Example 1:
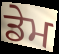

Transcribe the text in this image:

ਡੇਮ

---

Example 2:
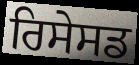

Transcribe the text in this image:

ਰਿਸੇਸਡ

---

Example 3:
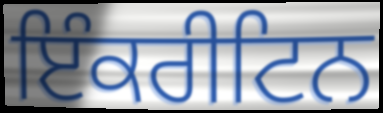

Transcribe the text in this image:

ਇੰਕਰੀਟਿਨ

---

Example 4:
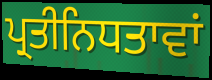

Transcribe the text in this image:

ਪ੍ਰਤੀਨਿਧਤਾਵਾਂ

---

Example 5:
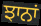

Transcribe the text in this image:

ਝਾਨਾਂ